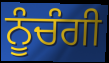
ਨੂੰਚੰਗੀ